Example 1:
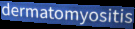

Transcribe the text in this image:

dermatomyositis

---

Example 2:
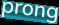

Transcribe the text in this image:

prong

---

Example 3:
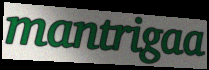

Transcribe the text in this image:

mantrigaa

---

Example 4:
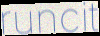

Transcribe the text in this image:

runcit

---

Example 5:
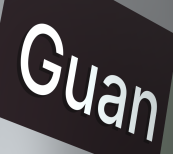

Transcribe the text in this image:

Guan